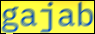
gajab